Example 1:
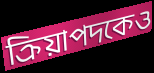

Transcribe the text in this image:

ক্রিয়াপদকেও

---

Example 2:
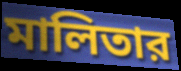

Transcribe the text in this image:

মালিতার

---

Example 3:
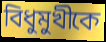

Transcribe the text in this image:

বিধুমুখীকে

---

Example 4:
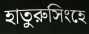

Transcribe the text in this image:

হাতুরুসিংহে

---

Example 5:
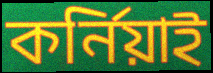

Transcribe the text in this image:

কর্নিয়াই